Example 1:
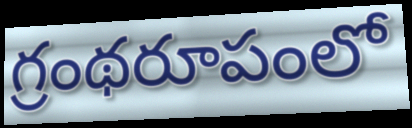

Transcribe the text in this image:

గ్రంథరూపంలో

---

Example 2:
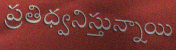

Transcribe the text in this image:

ప్రతిధ్వనిస్తున్నాయి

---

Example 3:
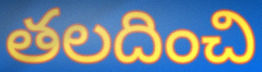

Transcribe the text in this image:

తలదించి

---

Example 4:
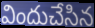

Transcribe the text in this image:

విందుచేసిన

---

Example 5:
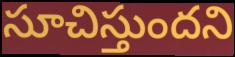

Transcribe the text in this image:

సూచిస్తుందని